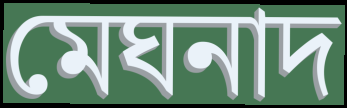
মেঘনাদ